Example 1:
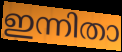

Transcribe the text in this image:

ഇന്നിതാ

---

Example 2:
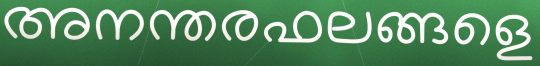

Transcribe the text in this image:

അനന്തരഫലങ്ങളെ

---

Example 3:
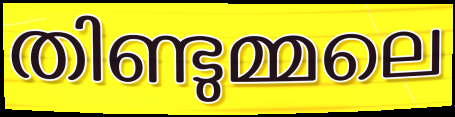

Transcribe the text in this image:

തിണ്ടുമ്മലെ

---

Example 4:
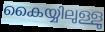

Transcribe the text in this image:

കൈയ്യിലുള്ളു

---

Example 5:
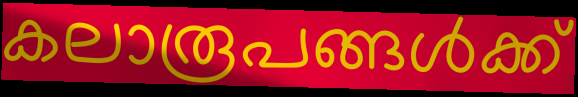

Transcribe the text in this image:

കലാരൂപങ്ങൾക്ക്